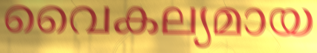
വൈകല്യമായ